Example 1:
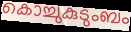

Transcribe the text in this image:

കൊച്ചുകുടുംബം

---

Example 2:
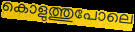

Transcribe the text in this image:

കൊളുത്തുപോലെ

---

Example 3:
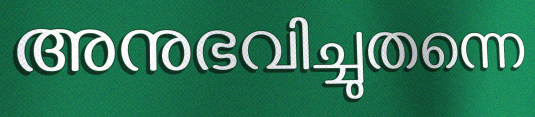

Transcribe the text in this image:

അനുഭവിച്ചുതന്നെ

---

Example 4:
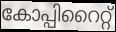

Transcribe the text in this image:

കോപ്പിറൈറ്റ്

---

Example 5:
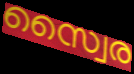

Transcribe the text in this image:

സ്വൈര